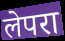
लेपरा